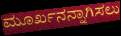
ಮೂರ್ಖನನ್ನಾಗಿಸಲು